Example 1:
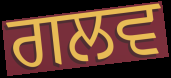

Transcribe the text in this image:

ਗਲਵ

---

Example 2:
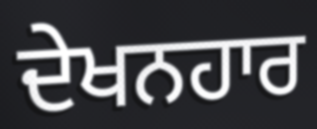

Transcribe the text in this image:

ਦੇਖਨਹਾਰ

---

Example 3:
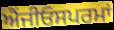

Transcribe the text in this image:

ਐਂਜੀਓਸਪਰਮਾਂ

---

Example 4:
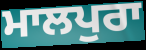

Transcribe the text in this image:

ਮਾਲਪੁਰਾ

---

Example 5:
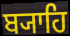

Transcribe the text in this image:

ਬ੍ਯਾਹਿ